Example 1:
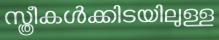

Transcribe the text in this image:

സ്ത്രീകൾക്കിടയിലുള്ള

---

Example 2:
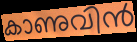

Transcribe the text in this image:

കാണുവിൻ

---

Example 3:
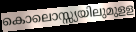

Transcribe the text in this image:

കൊലൊസ്സ്യയിലുമുളള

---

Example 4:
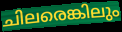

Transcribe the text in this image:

ചിലരെങ്കിലും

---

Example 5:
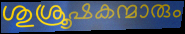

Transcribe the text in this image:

ശുശ്രൂഷകന്മാരും